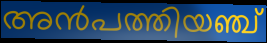
അൻപത്തിയഞ്ച്